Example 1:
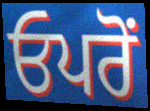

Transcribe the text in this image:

ਓਪਰੋਂ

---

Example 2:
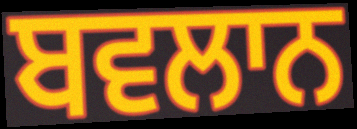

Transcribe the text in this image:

ਬਵਲਾਨ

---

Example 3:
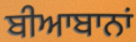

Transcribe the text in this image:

ਬੀਆਬਾਨਾਂ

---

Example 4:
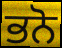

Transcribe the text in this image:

ਭਨੋ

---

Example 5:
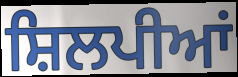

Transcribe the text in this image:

ਸ਼ਿਲਪੀਆਂ